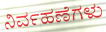
ನಿರ್ವಹಣೆಗಳು